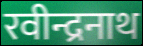
रवीन्द्रनाथ